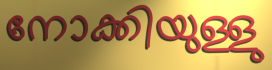
നോക്കിയുള്ളു